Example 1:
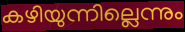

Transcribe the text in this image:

കഴിയുന്നില്ലെന്നും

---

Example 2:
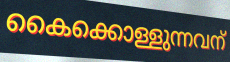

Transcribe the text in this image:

കൈക്കൊള്ളുന്നവന്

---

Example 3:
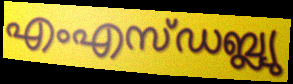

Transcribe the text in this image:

എംഎസ്ഡബ്ല്യു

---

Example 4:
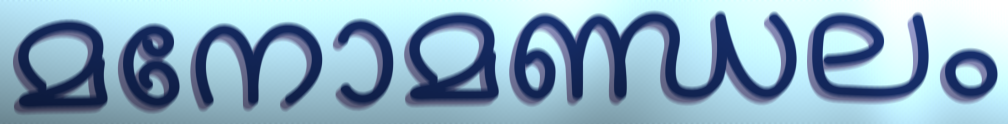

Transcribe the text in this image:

മനോമണ്ഡലം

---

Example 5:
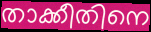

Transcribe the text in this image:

താക്കീതിനെ